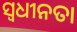
ସ୍ୱଧୀନତା